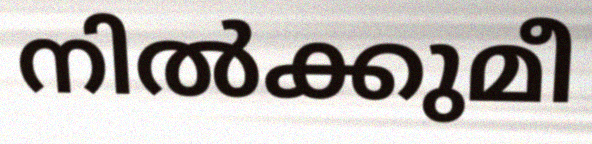
നിൽക്കുമീ